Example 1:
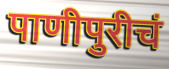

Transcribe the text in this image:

पाणीपुरीचं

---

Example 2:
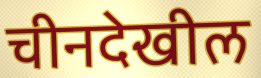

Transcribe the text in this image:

चीनदेखील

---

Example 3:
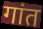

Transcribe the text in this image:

गांत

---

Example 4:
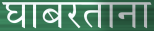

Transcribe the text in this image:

घाबरताना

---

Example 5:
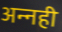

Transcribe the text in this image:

अन्नही